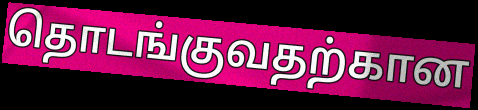
தொடங்குவதற்கான